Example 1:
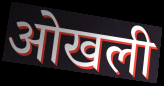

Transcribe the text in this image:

ओखली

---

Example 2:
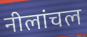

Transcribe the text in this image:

नीलांचल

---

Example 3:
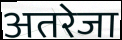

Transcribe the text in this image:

अतरेजा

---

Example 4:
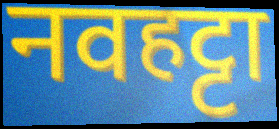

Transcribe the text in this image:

नवहट्टा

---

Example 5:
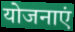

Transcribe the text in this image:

योजनाएं